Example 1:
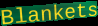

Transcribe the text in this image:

Blankets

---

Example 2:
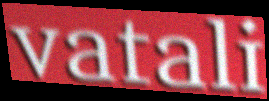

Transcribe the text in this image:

vatali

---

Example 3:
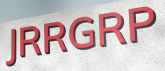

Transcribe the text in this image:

JRRGRP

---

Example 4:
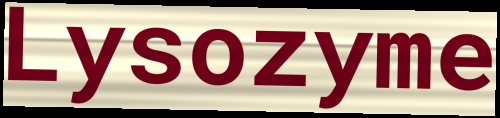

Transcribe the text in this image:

Lysozyme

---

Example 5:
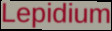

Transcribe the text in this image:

Lepidium